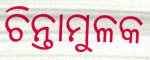
ଚିନ୍ତାମୁଳକ